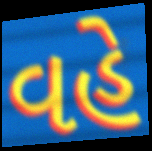
વહે